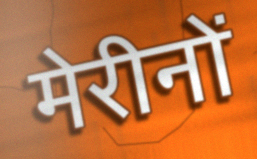
मेरीनों